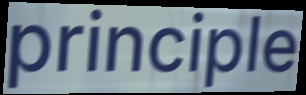
principle